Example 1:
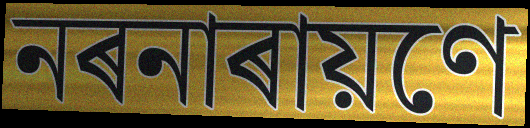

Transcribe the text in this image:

নৰনাৰায়ণে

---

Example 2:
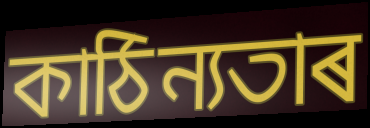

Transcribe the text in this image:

কাঠিন্যতাৰ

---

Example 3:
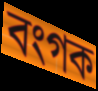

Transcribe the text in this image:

বংগক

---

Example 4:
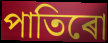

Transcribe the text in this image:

পাতিৰো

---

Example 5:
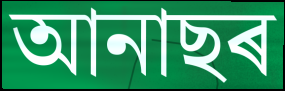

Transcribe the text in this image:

আনাছৰ